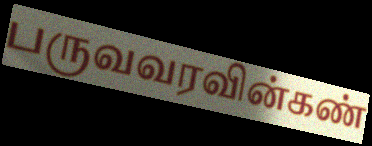
பருவவரவின்கண்